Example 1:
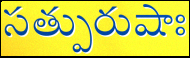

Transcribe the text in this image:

సత్పురుషాః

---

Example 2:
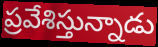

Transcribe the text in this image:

ప్రవేశిస్తున్నాడు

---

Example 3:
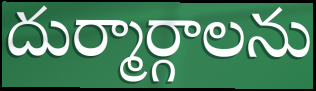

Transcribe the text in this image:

దుర్మార్గాలను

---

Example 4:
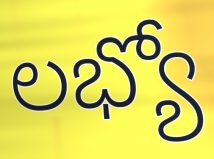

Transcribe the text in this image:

లభ్యో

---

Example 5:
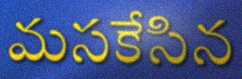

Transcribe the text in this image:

మసకేసిన